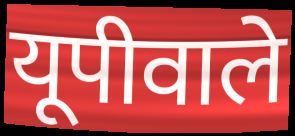
यूपीवाले